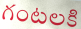
గంటలకి